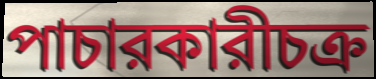
পাচারকারীচক্র